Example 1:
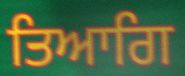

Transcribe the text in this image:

ਤਿਆਗਿ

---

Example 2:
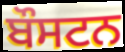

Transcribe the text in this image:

ਬੌਸਟਨ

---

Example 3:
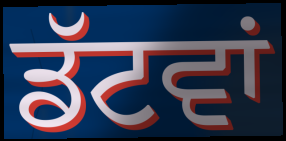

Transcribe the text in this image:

ਡੱਟਵਾਂ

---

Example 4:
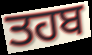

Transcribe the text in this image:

ਤਹਬ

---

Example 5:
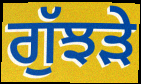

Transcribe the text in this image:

ਗੁੱਝੜੇ